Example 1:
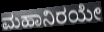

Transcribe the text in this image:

ಮಹಾನಿರಯೇ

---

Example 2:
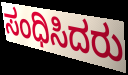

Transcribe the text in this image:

ಸಂಧಿಸಿದರು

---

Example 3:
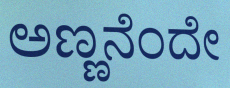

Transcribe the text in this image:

ಅಣ್ಣನೆಂದೇ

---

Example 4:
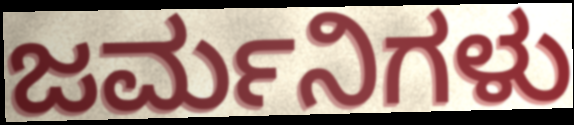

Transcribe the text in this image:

ಜರ್ಮನಿಗಳು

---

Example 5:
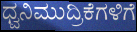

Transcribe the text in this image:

ಧ್ವನಿಮುದ್ರಿಕೆಗಳಿಗೆ